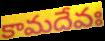
కామదేవః